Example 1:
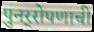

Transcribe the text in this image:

पुनर्रोपणाची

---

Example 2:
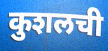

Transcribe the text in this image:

कुशलची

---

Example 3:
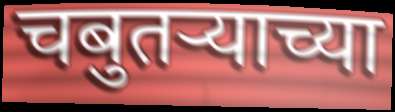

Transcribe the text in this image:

चबुतर्‍याच्या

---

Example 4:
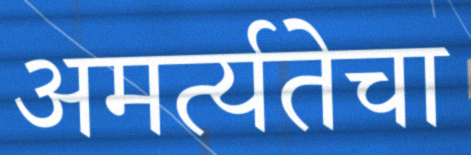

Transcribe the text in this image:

अमर्त्यतेचा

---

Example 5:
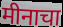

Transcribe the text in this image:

मीनाचा